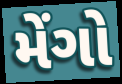
મેંગો